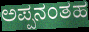
ಅಪ್ಪನಂತಹ